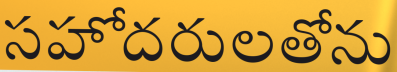
సహోదరులతోను